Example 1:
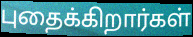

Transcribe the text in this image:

புதைக்கிறார்கள்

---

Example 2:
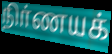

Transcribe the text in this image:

நிர்ணயக்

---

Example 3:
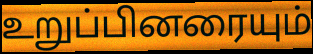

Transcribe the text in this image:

உறுப்பினரையும்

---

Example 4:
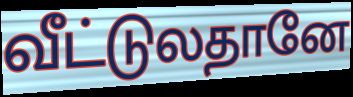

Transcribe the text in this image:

வீட்டுலதானே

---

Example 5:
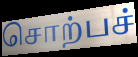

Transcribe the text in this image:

சொற்பச்